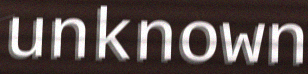
unknown